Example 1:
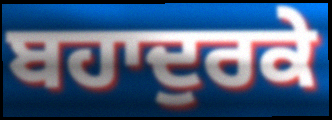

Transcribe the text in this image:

ਬਹਾਦੁਰਕੇ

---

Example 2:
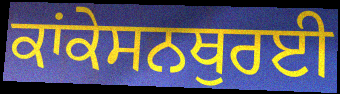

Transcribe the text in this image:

ਕਾਂਕੇਸਨਥੁਰਈ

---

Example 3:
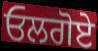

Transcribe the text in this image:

ਓਲਗੋਏ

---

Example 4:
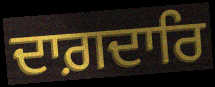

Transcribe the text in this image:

ਦਾਗ਼ਦਾਰਿ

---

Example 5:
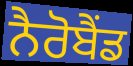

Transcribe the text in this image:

ਨੈਰੋਬੈਂਡ